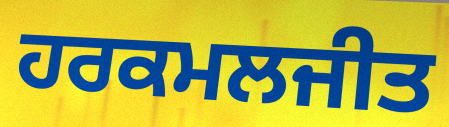
ਹਰਕਮਲਜੀਤ